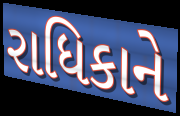
રાધિકાને